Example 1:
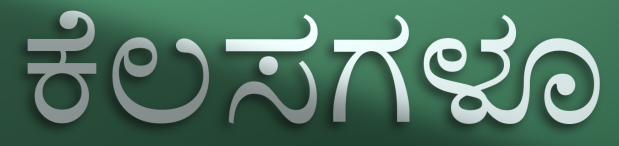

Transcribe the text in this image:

ಕೆಲಸಗಳೂ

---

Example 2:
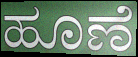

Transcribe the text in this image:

ಹೂಣೆ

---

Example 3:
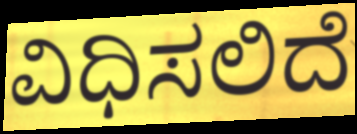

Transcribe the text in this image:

ವಿಧಿಸಲಿದೆ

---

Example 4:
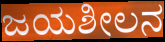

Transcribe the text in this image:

ಜಯಶೀಲನ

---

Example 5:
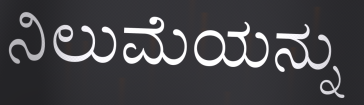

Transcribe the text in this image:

ನಿಲುಮೆಯನ್ನು